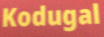
Kodugal